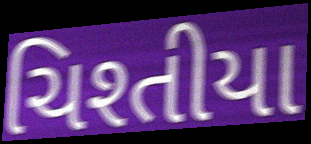
ચિશ્તીયા